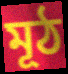
মূঠ